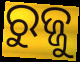
ରୁଜ୍ଜୁ